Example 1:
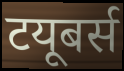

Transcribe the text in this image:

टयूबर्स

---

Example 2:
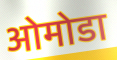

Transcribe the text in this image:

ओमोडा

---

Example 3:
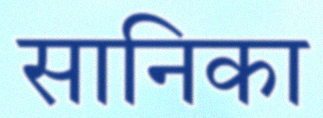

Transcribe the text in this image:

सानिका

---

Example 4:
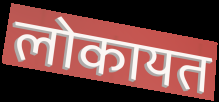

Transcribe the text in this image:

लोकायत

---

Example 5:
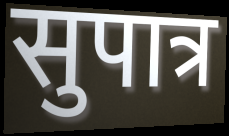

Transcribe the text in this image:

सुपात्र